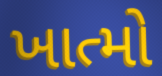
ખાત્મો